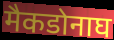
मैकडोनाघ